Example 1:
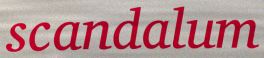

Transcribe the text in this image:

scandalum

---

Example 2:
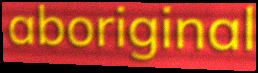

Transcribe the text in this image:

aboriginal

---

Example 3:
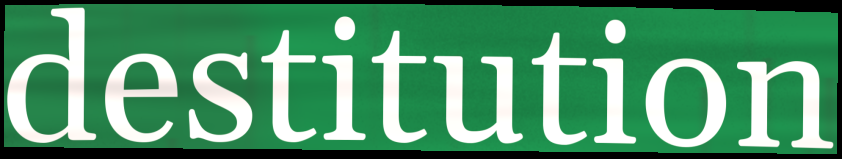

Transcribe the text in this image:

destitution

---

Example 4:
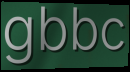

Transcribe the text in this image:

gbbc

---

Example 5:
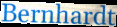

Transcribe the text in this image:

Bernhardt